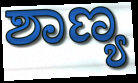
ಶಾಣ್ಯ